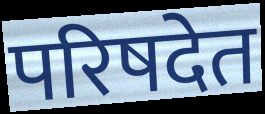
परिषदेत